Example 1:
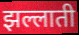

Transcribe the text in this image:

झल्लाती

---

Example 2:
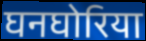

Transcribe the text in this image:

घनघोरिया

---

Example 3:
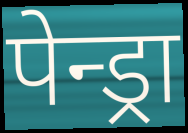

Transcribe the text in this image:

पेन्ड्रा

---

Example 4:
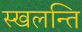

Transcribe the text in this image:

स्खलन्ति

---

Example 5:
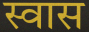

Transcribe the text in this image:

स्वास